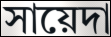
সায়েদা